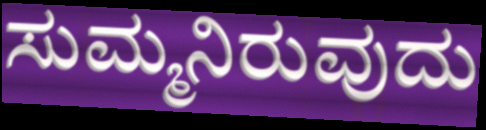
ಸುಮ್ಮನಿರುವುದು